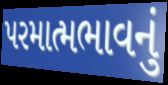
પરમાત્મભાવનું